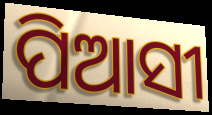
ପିଆସୀ